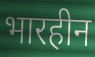
भारहीन